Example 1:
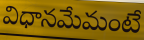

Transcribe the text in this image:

విధానమేమంటే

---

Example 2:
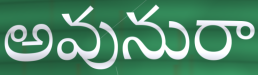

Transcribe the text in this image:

అవునురా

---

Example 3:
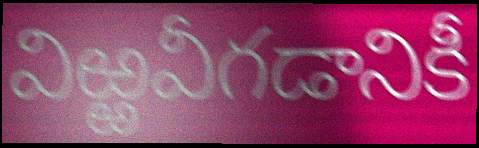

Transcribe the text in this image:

విఱ్ఱవీగడానికీ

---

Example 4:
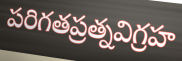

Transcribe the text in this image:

పరిగతప్రత్నవిగ్రహ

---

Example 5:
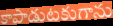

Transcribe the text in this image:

కాపాడుటకుగాను